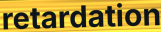
retardation